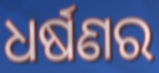
ଧର୍ଷଣର